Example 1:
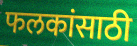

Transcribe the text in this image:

फलकांसाठी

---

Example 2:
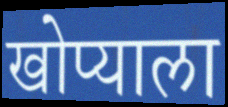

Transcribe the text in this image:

खोप्याला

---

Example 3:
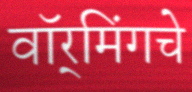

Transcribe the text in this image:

वॉर्मिंगचे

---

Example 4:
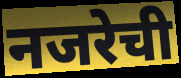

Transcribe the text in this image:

नजरेची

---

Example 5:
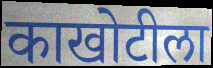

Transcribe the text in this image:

काखोटीला